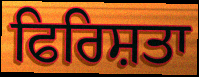
ਫਿਰਿਸ਼ਤਾ